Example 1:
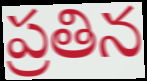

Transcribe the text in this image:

ప్రతిన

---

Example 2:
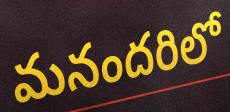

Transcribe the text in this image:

మనందరిలో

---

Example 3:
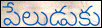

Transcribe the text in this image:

పేలుడుకు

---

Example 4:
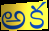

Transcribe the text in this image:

అక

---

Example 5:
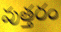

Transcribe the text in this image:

వుత్తరం